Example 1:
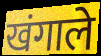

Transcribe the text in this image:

खंगाले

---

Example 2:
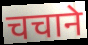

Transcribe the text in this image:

चचाने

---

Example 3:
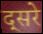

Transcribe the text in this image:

द्सरे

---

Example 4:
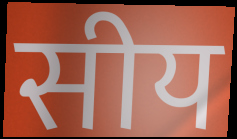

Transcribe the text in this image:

सीय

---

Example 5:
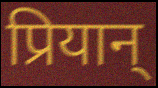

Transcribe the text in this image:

प्रियान्